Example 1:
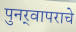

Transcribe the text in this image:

पुनर्वापराचे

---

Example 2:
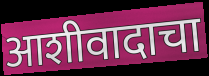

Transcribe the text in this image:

आशीवादाचा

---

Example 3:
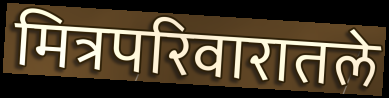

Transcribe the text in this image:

मित्रपरिवारातले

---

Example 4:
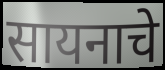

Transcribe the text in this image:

सायनाचे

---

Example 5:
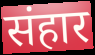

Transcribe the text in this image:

संहार